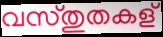
വസ്തുതകള്